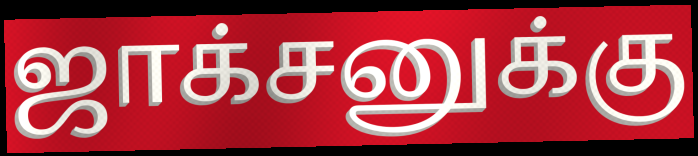
ஜாக்சனுக்கு